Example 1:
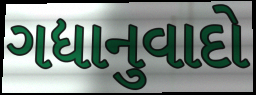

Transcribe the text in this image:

ગદ્યાનુવાદો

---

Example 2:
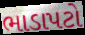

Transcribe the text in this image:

ભાડાપટો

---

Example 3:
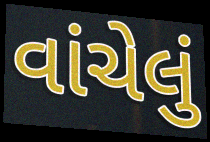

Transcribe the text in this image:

વાંચેલું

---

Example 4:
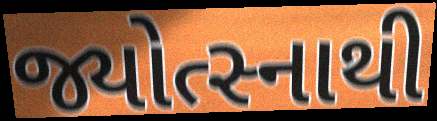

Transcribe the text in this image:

જ્યોત્સ્નાથી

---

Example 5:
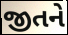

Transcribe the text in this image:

જીતને